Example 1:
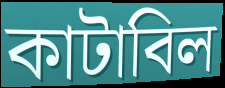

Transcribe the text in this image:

কাটাবিল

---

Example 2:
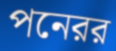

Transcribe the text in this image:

পনেরর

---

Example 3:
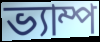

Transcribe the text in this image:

ভ্যাম্প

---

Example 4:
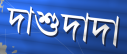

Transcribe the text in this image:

দাশুদাদা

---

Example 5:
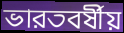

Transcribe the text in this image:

ভারতবর্ষীয়